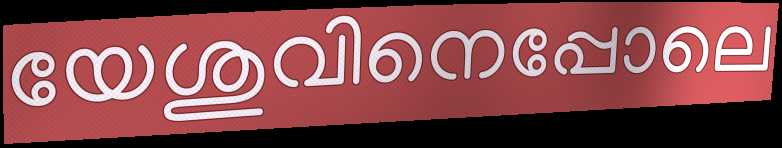
യേശുവിനെപ്പോലെ